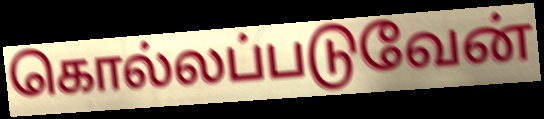
கொல்லப்படுவேன்